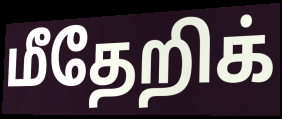
மீதேறிக்